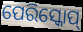
ପେରିସ୍କୋପ୍